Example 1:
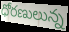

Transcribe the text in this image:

ధోరణులున్న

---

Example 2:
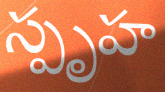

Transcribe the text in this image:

స్పృహ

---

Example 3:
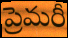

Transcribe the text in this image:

ప్రెమరీ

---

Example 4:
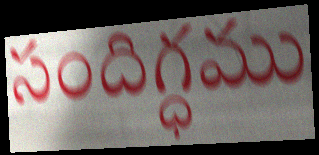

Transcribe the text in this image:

సందిగ్ధము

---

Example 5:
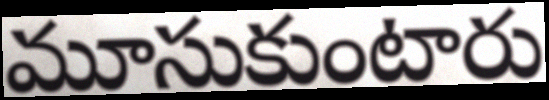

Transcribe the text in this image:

మూసుకుంటారు